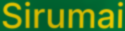
Sirumai